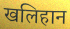
खलिहान